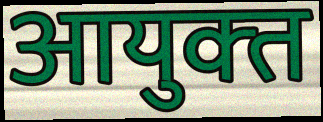
आयुक्‍त